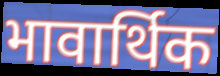
भावार्थिक